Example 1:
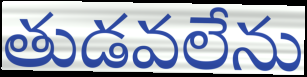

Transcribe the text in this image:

తుడవలేను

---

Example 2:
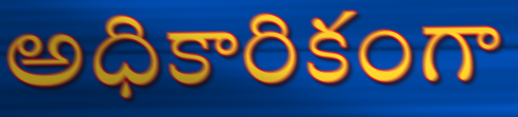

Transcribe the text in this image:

అధికారికంగా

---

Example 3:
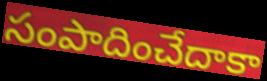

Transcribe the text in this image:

సంపాదించేదాకా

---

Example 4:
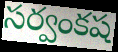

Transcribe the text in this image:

సర్వంకష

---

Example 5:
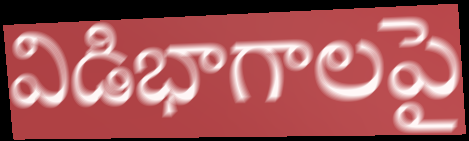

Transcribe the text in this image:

విడిభాగాలపై